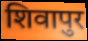
शिवापुर